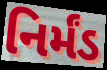
નિર્મંડ